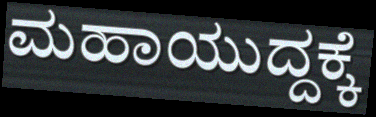
ಮಹಾಯುದ್ದಕ್ಕೆ